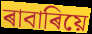
ৰাবাৰিয়ে